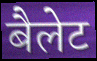
बैलेट